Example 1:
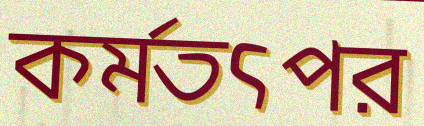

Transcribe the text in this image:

কর্মতৎপর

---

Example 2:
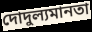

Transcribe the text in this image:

দোদুল্যমানতা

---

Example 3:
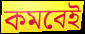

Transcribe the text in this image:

কমবেই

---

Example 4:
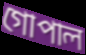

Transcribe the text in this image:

গোপাল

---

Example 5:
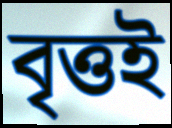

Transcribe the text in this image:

বৃত্তই